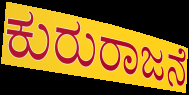
ಕುರುರಾಜನೆ